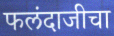
फलंदाजीचा